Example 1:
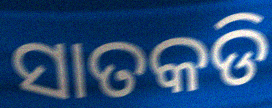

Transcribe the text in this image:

ସାତକଡି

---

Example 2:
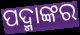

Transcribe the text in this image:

ପଦ୍ମାଙ୍କର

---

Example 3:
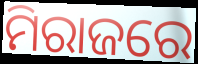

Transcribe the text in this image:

ମିରାଜରେ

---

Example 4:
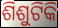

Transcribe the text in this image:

ଶିଶୁଟିକି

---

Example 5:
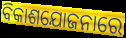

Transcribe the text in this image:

ବିକାଶଯୋଜନାରେ